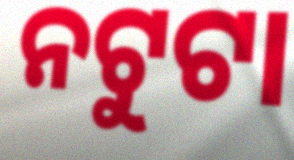
ନଟୁଟା